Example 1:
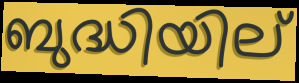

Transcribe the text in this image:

ബുദ്ധിയില്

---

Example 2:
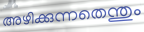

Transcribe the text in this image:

അഴിക്കുന്നതെന്തും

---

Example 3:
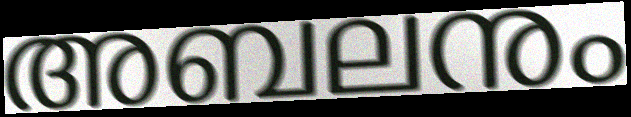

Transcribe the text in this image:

അബലനും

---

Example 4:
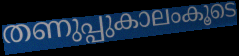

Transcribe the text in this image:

തണുപ്പുകാലംകൂടെ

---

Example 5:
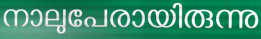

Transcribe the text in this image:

നാലുപേരായിരുന്നു